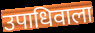
उपाधिवाला